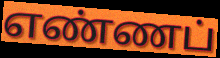
எண்ணப்